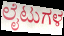
ಲೈಟುಗಳ